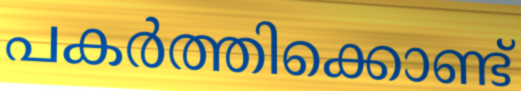
പകർത്തിക്കൊണ്ട്